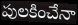
పులకించేనా